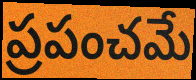
ప్రపంచమే